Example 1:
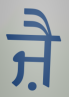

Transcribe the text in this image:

ਜ਼ੈ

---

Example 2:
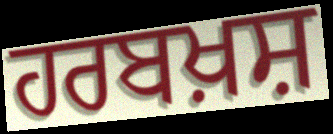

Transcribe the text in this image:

ਹਰਬਖ਼ਸ਼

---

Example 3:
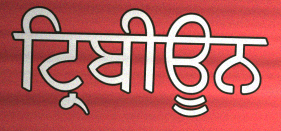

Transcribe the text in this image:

ਟ੍ਰਿਬੀਊਨ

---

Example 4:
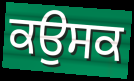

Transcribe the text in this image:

ਕਉਸਕ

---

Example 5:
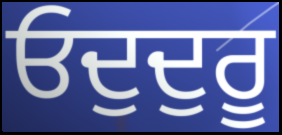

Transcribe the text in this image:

ਓਦੁਦੁਰੂ